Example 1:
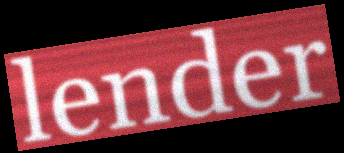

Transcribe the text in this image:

lender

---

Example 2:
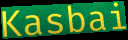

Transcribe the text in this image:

Kasbai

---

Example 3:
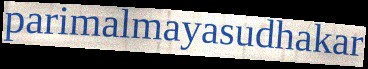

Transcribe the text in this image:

parimalmayasudhakar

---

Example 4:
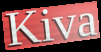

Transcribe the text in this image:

Kiva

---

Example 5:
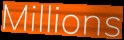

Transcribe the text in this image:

Millions